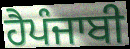
ਹੈਪੰਜਾਬੀ